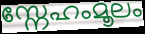
സ്നേഹംമൂലം